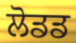
ਲੋਡਡ